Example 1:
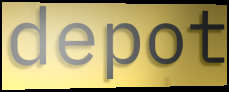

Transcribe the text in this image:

depot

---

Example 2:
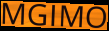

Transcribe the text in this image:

MGIMO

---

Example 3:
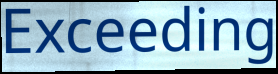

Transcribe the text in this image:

Exceeding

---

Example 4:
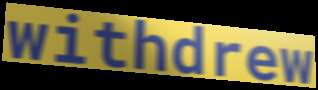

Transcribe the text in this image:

withdrew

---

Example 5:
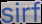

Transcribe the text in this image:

sirf